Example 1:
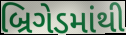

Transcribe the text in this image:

બ્રિગેડમાંથી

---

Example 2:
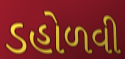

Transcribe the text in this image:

ડહોળવી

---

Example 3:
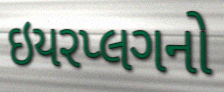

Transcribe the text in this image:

ઇયરપ્લગનો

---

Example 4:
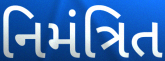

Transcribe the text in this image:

નિમંત્રિત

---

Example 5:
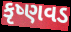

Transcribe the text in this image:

કૃષ્ણવડ